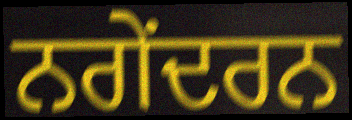
ਨਗੇਂਦਰਨ